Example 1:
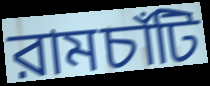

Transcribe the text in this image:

রামচাঁটি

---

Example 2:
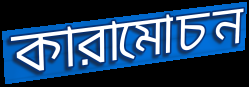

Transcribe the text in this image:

কারামোচন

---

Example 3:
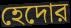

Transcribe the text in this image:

হেদোর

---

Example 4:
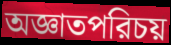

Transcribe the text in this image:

অজ্ঞাতপরিচয়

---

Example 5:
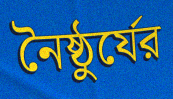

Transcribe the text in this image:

নৈষ্ঠুর্যের